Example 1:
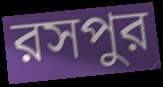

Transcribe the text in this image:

রসপুর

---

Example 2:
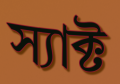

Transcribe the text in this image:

স্যাক্ট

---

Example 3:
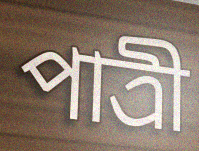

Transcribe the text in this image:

পাত্রী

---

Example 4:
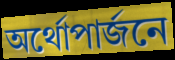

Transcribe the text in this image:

অর্থোপার্জনে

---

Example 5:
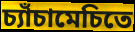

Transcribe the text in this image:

চ্যাঁচামেচিতে